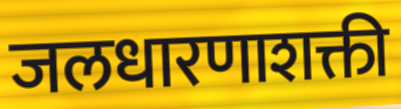
जलधारणाशक्ती